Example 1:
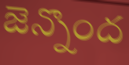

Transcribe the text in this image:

జెన్నొంద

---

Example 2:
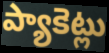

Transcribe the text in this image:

ప్యాకెట్లు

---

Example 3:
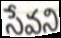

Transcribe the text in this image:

సేవని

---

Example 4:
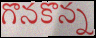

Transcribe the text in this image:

గొనకొన్న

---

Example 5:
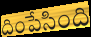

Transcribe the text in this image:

దింపేసింది